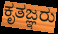
ಕೃತಜ್ಞರು